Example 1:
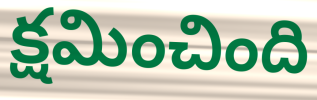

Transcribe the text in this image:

క్షమించింది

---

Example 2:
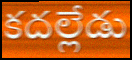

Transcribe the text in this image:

కదల్లేడు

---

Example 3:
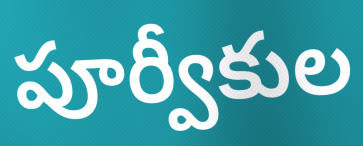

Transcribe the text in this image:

పూర్వీకుల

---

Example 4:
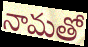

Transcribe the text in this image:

నామతో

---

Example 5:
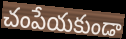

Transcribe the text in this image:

చంపేయకుండా